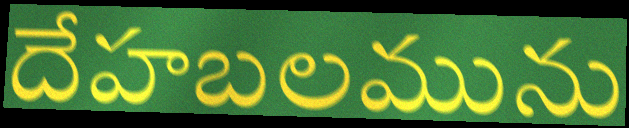
దేహబలమును